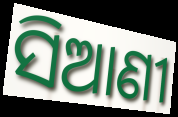
ସିଆଣୀ